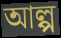
আল্প